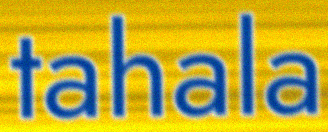
tahala